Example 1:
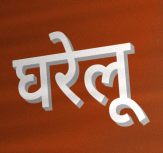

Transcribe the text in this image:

घरेलू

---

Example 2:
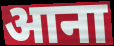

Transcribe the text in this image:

आना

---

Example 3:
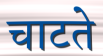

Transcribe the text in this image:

चाटते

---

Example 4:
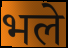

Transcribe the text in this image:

भले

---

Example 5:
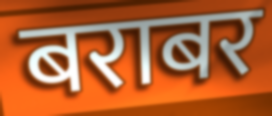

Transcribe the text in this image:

बराबर